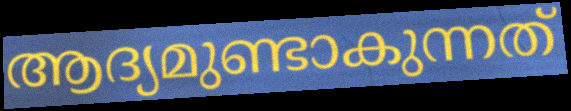
ആദ്യമുണ്ടാകുന്നത്